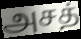
அசத்